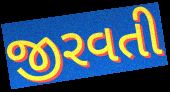
જીરવતી